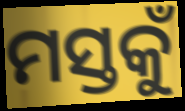
ମସ୍ତକୁଁ